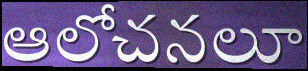
ఆలోచనలూ